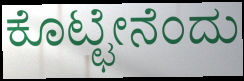
ಕೊಟ್ಟೇನೆಂದು